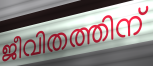
ജീവിതത്തിന്